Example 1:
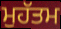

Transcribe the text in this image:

ਮੁਹੱਤਮ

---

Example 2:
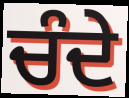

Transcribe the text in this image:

ਚੰਦੇ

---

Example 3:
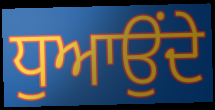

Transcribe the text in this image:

ਧੁਆਉਂਦੇ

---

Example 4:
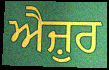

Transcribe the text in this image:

ਐਜ਼ੁਰ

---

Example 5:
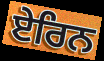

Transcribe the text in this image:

ਏਰਿਨ